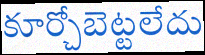
కూర్చోబెట్టలేదు